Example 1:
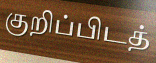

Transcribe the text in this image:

குறிப்பிடத்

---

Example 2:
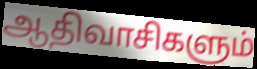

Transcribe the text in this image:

ஆதிவாசிகளும்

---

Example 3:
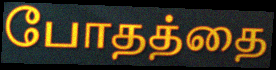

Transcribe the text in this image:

போதத்தை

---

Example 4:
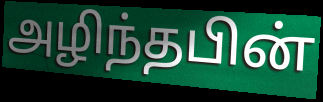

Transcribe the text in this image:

அழிந்தபின்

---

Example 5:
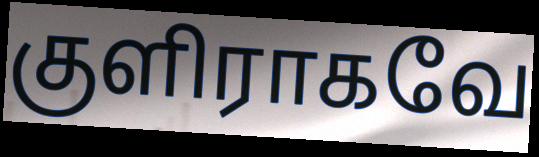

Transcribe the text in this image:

குளிராகவே